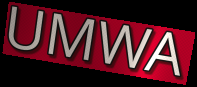
UMWA